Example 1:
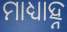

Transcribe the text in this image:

ମାଧ୍ୟାହ୍ନ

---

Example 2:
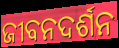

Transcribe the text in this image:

ଜୀବନଦର୍ଶନ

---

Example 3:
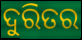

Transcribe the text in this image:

ଦୁରିତର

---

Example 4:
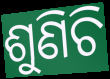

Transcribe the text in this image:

ଶୁଣିଚି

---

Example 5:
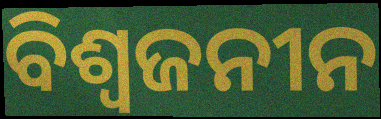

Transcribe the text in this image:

ବିଶ୍ୱଜନୀନ